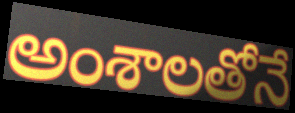
అంశాలతోనే